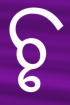
ଚୃ